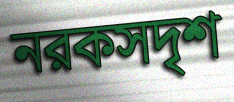
নরকসদৃশ